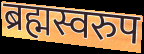
ब्रह्मस्वरुप